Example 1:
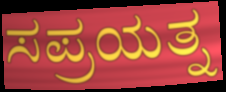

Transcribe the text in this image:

ಸಪ್ರಯತ್ನ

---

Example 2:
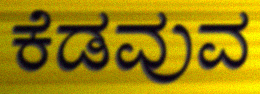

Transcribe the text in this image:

ಕೆಡವುವ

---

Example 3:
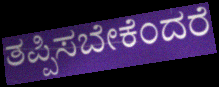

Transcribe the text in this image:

ತಪ್ಪಿಸಬೇಕೆಂದರೆ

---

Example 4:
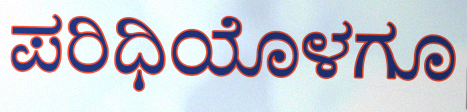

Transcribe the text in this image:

ಪರಿಧಿಯೊಳಗೂ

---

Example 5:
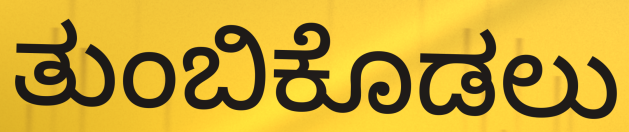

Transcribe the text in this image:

ತುಂಬಿಕೊಡಲು